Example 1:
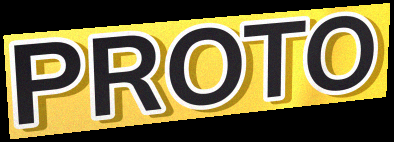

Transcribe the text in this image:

PROTO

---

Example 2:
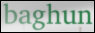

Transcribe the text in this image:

baghun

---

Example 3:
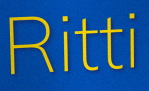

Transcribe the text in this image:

Ritti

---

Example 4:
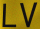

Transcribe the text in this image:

LV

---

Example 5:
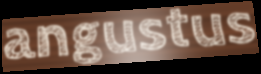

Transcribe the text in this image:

angustus